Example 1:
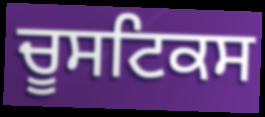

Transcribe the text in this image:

ਚੂਸਟਿਕਸ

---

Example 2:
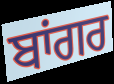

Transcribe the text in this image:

ਬਾਂਗਰ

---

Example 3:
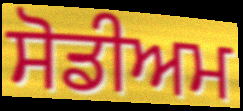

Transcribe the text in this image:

ਸੋਡੀਅਮ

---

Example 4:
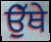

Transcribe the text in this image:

ਉੁੱਥੇ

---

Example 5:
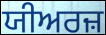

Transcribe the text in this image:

ਯੀਅਰਜ਼